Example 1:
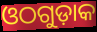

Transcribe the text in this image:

ଓଠଗୁଡ଼ାକ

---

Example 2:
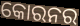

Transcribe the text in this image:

କୋରନର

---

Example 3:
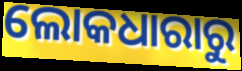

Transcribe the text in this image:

ଲୋକଧାରାରୁ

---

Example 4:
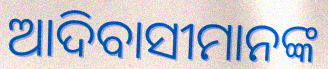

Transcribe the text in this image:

ଆଦିବାସୀମାନଙ୍କ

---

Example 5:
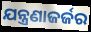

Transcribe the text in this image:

ଯନ୍ତ୍ରଣାଜର୍ଜର